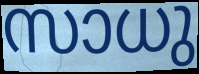
സാധു